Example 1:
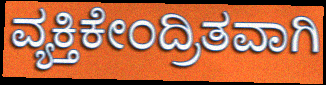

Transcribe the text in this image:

ವ್ಯಕ್ತಿಕೇಂದ್ರಿತವಾಗಿ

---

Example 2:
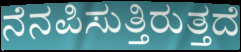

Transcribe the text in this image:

ನೆನಪಿಸುತ್ತಿರುತ್ತದೆ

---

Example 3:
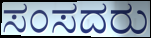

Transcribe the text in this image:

ಸಂಸದರು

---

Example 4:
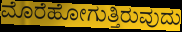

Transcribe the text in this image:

ಮೊರೆಹೋಗುತ್ತಿರುವುದು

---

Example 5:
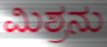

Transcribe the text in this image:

ಮಿಶ್ರನು